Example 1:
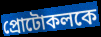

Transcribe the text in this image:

প্রোটোকলকে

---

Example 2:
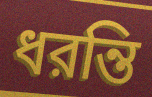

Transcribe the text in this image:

ধরন্তি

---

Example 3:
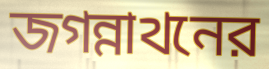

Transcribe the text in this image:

জগন্নাথনের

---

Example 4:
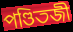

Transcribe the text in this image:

পণ্ডিতজী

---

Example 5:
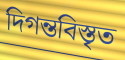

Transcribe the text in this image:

দিগন্তবিস্তৃত